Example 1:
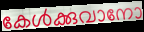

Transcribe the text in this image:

കേൾക്കുവാനോ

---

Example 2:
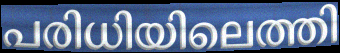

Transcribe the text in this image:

പരിധിയിലെത്തി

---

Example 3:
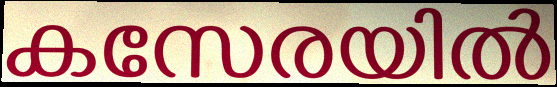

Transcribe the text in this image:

കസേരയിൽ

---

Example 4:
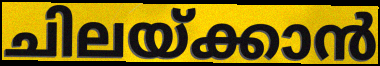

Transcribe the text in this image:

ചിലയ്ക്കാൻ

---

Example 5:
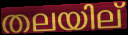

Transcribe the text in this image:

തലയില്